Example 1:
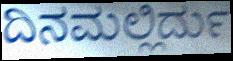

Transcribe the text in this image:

ದಿನಮಲ್ಲಿರ್ದು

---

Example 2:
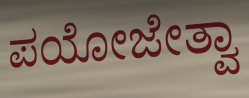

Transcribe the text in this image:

ಪಯೋಜೇತ್ವಾ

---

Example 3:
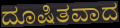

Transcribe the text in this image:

ದೂಷಿತವಾದ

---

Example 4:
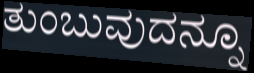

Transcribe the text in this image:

ತುಂಬುವುದನ್ನೂ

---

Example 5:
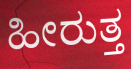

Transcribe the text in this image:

ಹೀರುತ್ತ